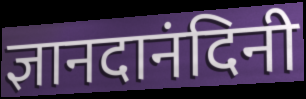
ज्ञानदानंदिनी